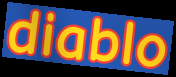
diablo